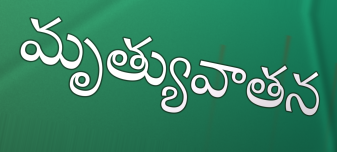
మృత్యువాతన